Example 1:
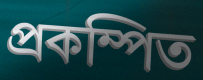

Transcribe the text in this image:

প্রকম্পিত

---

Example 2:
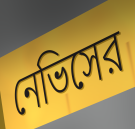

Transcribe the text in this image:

নেভিসের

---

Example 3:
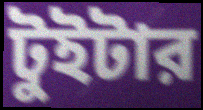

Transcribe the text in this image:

টুইটার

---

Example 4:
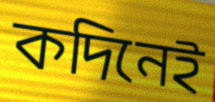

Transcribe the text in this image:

কদিনেই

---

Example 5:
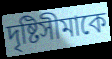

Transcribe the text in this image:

দৃষ্টিসীমাকে